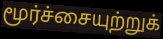
மூர்ச்சையுற்றுக்